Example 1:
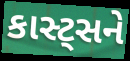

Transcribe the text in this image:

કાસ્ટ્સને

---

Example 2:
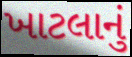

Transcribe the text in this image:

ખાટલાનું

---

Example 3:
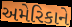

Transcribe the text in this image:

અમેરિકાને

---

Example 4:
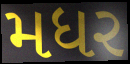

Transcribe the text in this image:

મધર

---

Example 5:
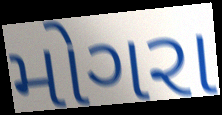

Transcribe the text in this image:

મોગરા